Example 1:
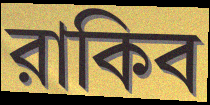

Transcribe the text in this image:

রাকিব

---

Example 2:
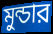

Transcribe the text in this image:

মুন্ডার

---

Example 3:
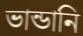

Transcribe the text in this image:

ভান্ডানি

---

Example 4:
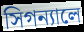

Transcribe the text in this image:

সিগন্যালে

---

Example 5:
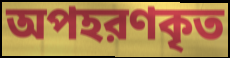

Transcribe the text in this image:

অপহরণকৃত